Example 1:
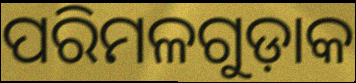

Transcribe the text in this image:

ପରିମଳଗୁଡ଼ାକ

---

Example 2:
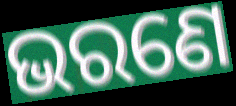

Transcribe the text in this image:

ଭରଣେ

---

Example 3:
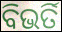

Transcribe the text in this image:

ବିଭର୍ତି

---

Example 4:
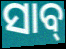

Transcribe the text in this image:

ସାବ୍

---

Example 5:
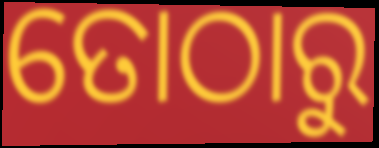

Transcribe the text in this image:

ତୋଠାରୁ